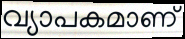
വ്യാപകമാണ്